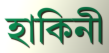
হাকিনী